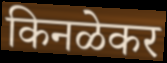
किनळेकर